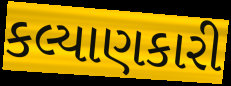
કલ્યાણકારી